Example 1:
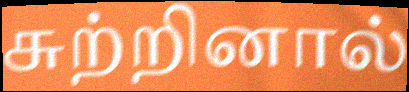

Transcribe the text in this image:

சுற்றினால்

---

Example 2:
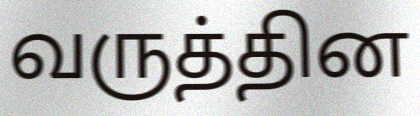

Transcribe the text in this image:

வருத்தின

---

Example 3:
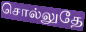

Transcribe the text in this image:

சொல்லுதே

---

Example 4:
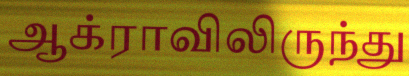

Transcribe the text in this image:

ஆக்ராவிலிருந்து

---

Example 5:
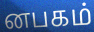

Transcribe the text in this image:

னபகம்